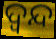
ଦ୍ବନ୍ଦ